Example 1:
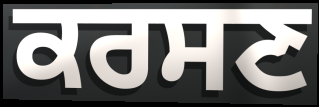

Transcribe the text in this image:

ਕਰਸਣ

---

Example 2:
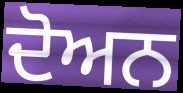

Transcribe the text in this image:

ਦੋਅਨ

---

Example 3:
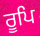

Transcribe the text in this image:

ਰੂਪਿ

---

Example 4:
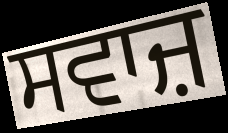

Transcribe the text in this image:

ਸਵਾਜ਼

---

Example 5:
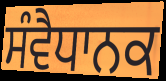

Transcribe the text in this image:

ਸੰਵੈਧਾਨਕ